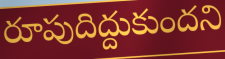
రూపుదిద్దుకుందని